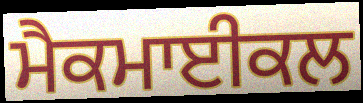
ਮੈਕਮਾਈਕਲ